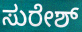
ಸುರೇಶ್